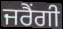
ਜਰੈਂਗੀ